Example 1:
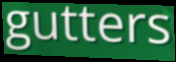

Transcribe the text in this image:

gutters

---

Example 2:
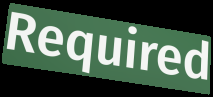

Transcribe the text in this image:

Required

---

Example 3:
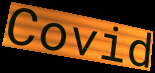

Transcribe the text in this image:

Covid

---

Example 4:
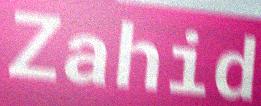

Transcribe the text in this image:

Zahid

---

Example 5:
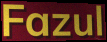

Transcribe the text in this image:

Fazul